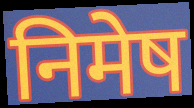
निमेष